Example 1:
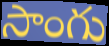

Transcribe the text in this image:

సాంగు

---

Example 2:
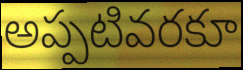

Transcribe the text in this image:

అప్పటివరకూ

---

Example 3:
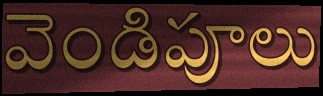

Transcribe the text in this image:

వెండిపూలు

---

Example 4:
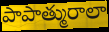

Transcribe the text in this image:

పాపాత్మురాలా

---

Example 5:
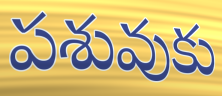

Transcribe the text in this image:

పశువుకు